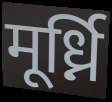
मूर्ध्नि